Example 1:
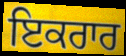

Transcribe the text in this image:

ਇਕਰਾਰ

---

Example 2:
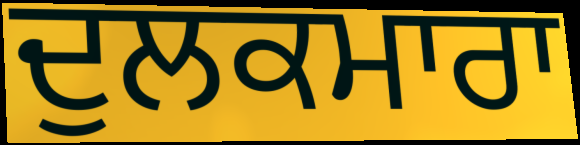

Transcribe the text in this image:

ਦੁਲਕਮਾਰਾ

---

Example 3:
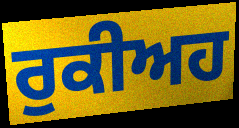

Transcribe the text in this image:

ਰੁਕੀਅਹ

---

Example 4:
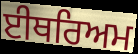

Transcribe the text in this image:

ਈਥਰਿਅਮ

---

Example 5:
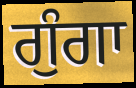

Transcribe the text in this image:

ਗੁੰਗਾ